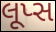
લૂપ્સ